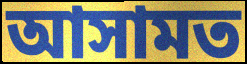
আসামত